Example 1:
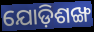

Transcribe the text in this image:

ଯୋଡ଼ିଶଙ୍ଖ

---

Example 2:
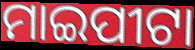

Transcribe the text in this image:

ମାଇପୀଟା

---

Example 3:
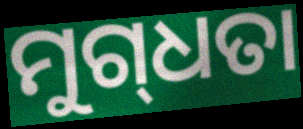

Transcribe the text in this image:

ମୁଗ୍‌ଧତା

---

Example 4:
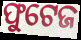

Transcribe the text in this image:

ଫୁଟେଜ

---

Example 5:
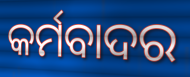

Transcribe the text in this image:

କର୍ମବାଦର